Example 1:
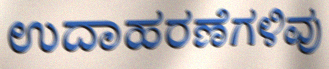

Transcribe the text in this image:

ಉದಾಹರಣೆಗಳಿವು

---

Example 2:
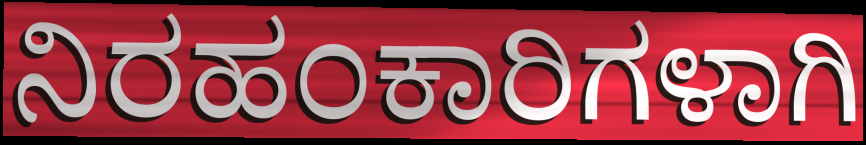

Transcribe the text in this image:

ನಿರಹಂಕಾರಿಗಳಾಗಿ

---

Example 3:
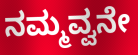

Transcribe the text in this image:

ನಮ್ಮವ್ವನೇ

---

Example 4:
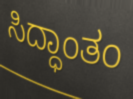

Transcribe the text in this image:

ಸಿದ್ಧಾಂತಂ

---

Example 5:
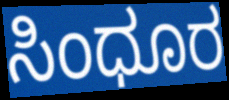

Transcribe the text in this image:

ಸಿಂಧೂರ